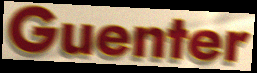
Guenter